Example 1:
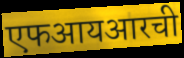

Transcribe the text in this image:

एफआयआरची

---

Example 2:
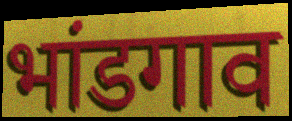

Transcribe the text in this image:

भांडगाव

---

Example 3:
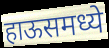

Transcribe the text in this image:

हाऊसमध्ये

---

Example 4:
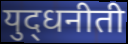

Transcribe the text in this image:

युद्धनीती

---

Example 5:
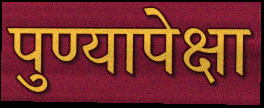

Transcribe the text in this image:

पुण्यापेक्षा